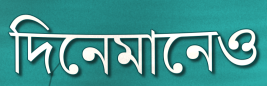
দিনেমানেও